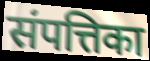
संपत्तिका